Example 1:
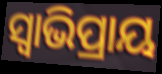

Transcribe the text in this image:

ସ୍ଵାଭିପ୍ରାୟ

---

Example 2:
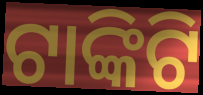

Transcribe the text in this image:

ଟାଙ୍କିଟି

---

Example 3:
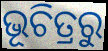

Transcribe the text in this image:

ଭୂଚିତ୍ରରୁ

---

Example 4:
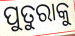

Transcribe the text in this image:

ପୁତୁରାକୁ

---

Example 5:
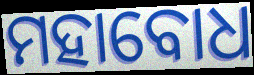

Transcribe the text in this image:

ମହାବୋଧ